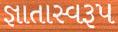
જ્ઞાતાસ્વરૂપ